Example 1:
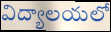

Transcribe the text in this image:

విద్యాలయలో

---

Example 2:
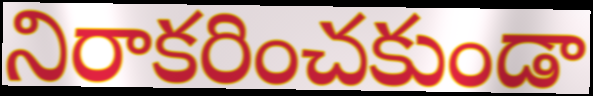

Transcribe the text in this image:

నిరాకరించకుండా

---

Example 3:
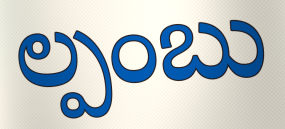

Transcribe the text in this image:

ల్పంబు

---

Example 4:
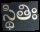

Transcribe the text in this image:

స్థితిః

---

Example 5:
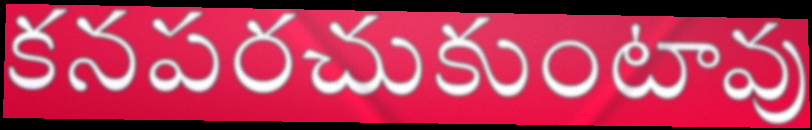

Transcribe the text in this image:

కనపరచుకుంటావు